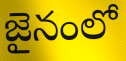
జైనంలో